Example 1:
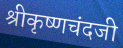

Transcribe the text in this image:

श्रीकृष्णचंदजी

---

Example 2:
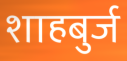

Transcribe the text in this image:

शाहबुर्ज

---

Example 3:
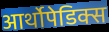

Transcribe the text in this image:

आर्थोपेडिक्स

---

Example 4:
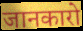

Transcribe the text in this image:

जानकारो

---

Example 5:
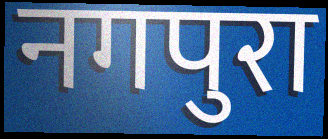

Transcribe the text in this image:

नगपुरा